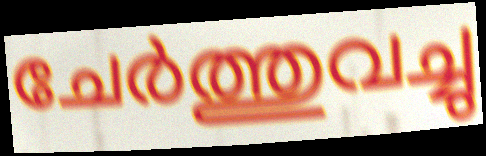
ചേർത്തുവച്ചു